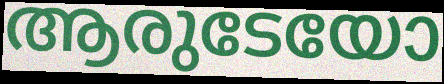
ആരുടേയോ